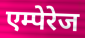
एम्पेरेज